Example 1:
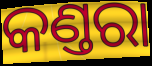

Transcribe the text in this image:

କଣ୍ତରା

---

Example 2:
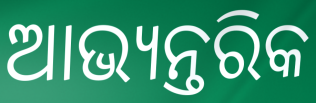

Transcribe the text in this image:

ଆଭ୍ୟନ୍ତରିକ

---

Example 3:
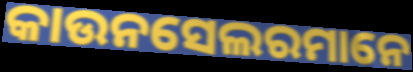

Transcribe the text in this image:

କାଉନସେଲରମାନେ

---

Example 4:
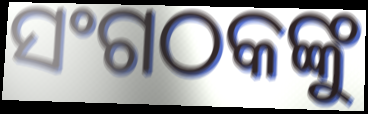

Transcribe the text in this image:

ସଂଗଠକଙ୍କୁ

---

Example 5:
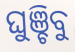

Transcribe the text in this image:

ଘୁଞ୍ଚିବୁ